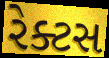
રેક્ટસ